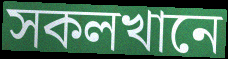
সকলখানে